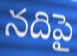
నదిపై